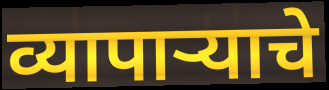
व्यापाऱ्याचे